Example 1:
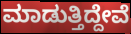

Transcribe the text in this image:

ಮಾಡುತ್ತಿದ್ದೇವೆ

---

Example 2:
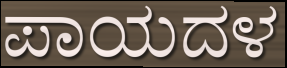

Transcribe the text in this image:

ಪಾಯದಳ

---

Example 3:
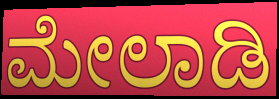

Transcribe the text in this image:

ಮೇಲಾಡಿ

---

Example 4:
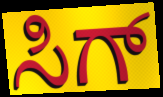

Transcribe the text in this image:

ಸಿಗ್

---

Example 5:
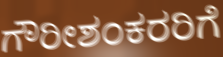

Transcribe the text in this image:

ಗೌರೀಶಂಕರರಿಗೆ